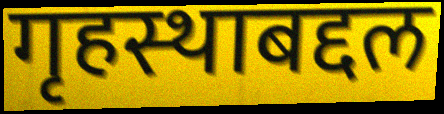
गृहस्थाबद्दल